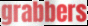
grabbers